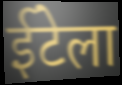
ईटेला